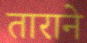
ताराने